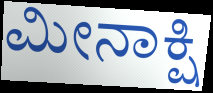
ಮೀನಾಕ್ಷಿ